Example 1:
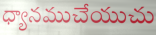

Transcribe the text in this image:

ధ్యానముచేయుచు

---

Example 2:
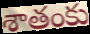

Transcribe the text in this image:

శాతంకు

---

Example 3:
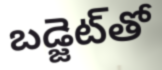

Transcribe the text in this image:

బడ్జెట్‌తో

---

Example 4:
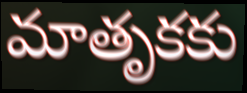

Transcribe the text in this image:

మాతృకకు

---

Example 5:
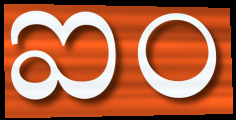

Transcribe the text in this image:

ఐం